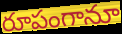
రూపంగానూ